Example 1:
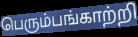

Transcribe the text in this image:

பெரும்பங்காற்றி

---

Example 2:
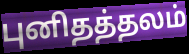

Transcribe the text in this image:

புனிதத்தலம்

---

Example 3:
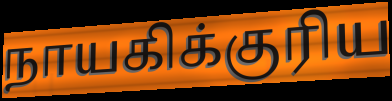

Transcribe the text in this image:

நாயகிக்குரிய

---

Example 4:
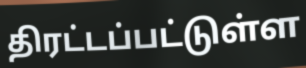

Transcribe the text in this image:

திரட்டப்பட்டுள்ள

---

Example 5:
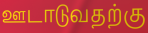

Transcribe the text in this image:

ஊடாடுவதற்கு